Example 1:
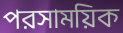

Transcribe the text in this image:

পরসাময়িক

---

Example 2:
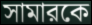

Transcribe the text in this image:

সামারকে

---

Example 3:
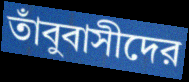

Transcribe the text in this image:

তাঁবুবাসীদের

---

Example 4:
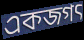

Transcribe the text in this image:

একজগৎ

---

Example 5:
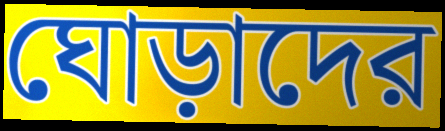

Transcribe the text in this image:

ঘোড়াদের